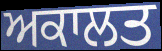
ਅਕਾਲਤ